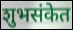
शुभसंकेत